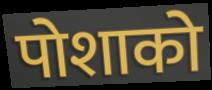
पोशाको